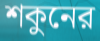
শকুনের